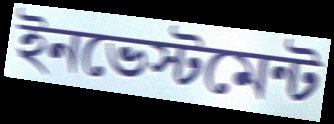
ইনভেস্টমেন্ট